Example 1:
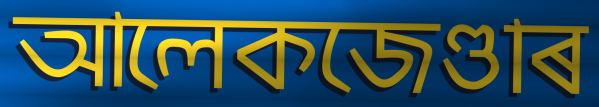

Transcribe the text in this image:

আলেকজেণ্ডাৰ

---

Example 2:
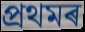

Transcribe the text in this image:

প্ৰথমৰ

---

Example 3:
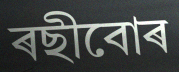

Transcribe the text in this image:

ৰছীবোৰ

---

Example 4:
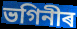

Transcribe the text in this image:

ভগিনীৰ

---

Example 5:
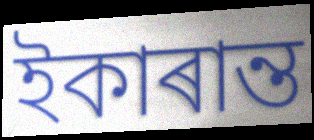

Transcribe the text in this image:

ইকাৰান্ত